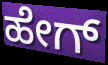
ಹೇಗ್